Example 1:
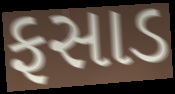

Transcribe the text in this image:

ફસાડ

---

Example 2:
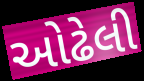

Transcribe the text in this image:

ઓઢેલી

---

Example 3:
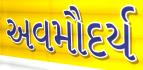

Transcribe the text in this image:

અવમૌદર્ય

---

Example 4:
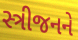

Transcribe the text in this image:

સ્ત્રીજનને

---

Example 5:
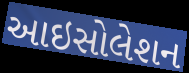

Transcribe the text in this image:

આઇસોલેશન